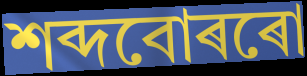
শব্দবোৰৰো